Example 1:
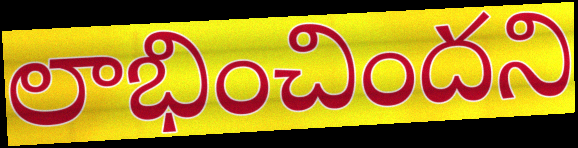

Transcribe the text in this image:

లాభించిందని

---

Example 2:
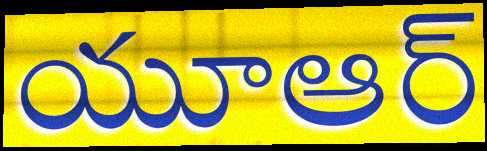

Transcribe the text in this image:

యూఆర్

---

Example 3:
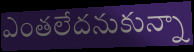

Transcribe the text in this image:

ఎంతలేదనుకున్నా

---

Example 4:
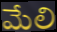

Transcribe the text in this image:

మేలి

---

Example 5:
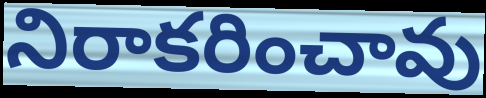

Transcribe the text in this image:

నిరాకరించావు